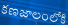
కణజాలంలోకి